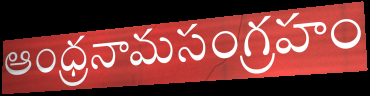
ఆంధ్రనామసంగ్రహం